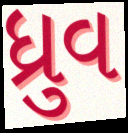
ધ્રુવ